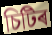
চিটিৰ